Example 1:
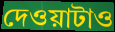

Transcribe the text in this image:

দেওয়াটাও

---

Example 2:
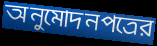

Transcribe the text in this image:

অনুমোদনপত্রের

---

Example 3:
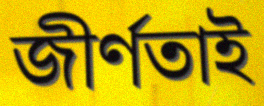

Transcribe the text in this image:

জীর্ণতাই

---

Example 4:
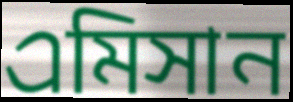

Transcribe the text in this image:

এমিসান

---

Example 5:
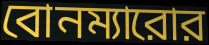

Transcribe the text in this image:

বোনম্যারোর